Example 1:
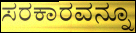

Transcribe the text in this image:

ಸರಕಾರವನ್ನೂ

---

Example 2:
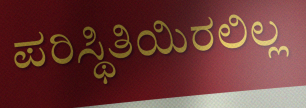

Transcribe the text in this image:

ಪರಿಸ್ಥಿತಿಯಿರಲಿಲ್ಲ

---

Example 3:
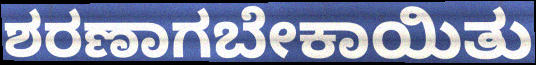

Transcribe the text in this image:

ಶರಣಾಗಬೇಕಾಯಿತು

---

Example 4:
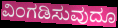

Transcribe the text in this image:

ವಿಂಗಡಿಸುವುದೂ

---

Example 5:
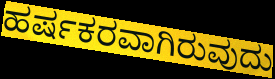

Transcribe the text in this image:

ಹರ್ಷಕರವಾಗಿರುವುದು